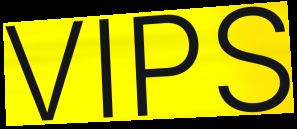
VIPS